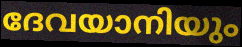
ദേവയാനിയും